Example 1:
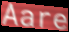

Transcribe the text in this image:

Aare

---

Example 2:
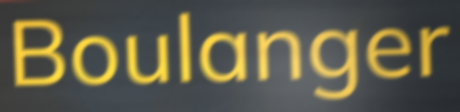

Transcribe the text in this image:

Boulanger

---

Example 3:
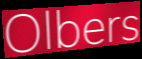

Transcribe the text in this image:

Olbers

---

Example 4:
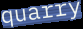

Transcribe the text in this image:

quarry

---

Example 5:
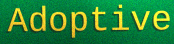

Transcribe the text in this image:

Adoptive